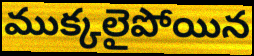
ముక్కలైపోయిన